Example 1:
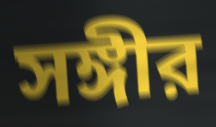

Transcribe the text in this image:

সঙ্গীর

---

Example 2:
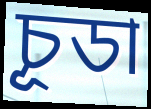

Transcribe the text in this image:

চূডা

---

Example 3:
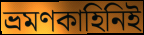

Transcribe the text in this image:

ভ্রমণকাহিনিই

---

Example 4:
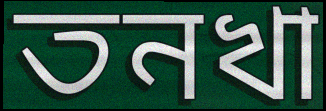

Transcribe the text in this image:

তনখা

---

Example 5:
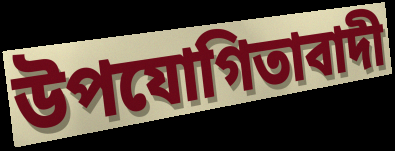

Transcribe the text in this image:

উপযোগিতাবাদী